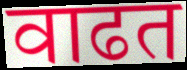
वाढत